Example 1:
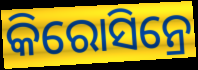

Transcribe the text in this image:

କିରୋସିନ୍ରେ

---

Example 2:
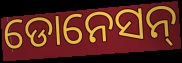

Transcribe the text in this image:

ଡୋନେସନ୍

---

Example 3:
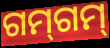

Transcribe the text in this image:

ଗମ୍‍ଗମ୍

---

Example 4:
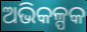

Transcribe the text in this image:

ଅଭିକଳ୍ପକ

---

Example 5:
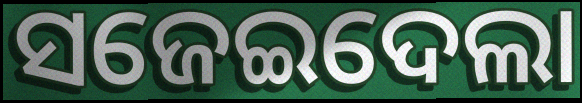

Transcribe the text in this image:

ସଜେଇଦେଲା